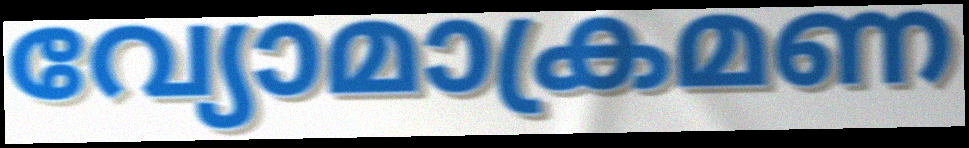
വ്യോമാക്രമണ